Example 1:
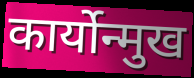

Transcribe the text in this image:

कार्योन्मुख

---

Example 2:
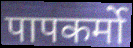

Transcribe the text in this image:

पापकर्मो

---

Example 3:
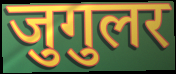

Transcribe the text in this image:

जुगुलर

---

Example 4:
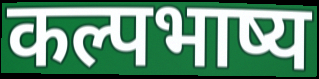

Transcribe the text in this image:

कल्पभाष्य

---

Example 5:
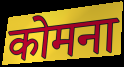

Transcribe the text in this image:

कोमना